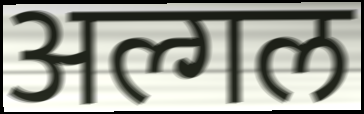
अल्गल